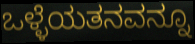
ಒಳ್ಳೆಯತನವನ್ನೂ